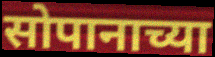
सोपानाच्या